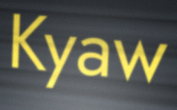
Kyaw